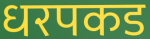
धरपकड